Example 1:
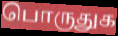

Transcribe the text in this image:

பொருதுக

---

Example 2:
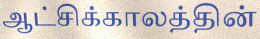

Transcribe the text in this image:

ஆட்சிக்காலத்தின்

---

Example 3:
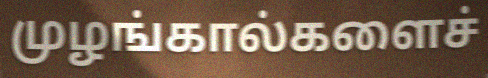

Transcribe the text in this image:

முழங்கால்களைச்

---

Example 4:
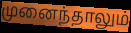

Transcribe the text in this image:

முனைந்தாலும்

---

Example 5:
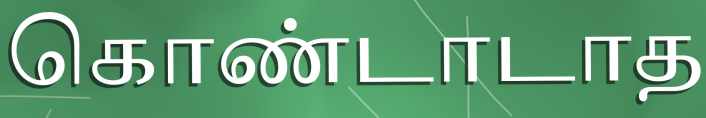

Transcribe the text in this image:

கொண்டாடாத